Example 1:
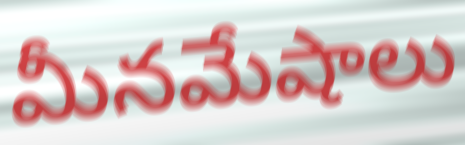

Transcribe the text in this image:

మీనమేషాలు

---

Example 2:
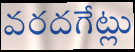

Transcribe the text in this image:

వరదగేట్లు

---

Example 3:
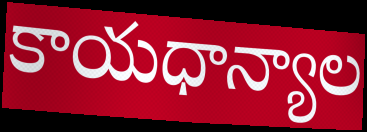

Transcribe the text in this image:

కాయధాన్యాల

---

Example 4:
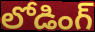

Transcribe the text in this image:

లోడింగ్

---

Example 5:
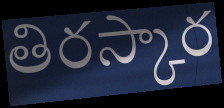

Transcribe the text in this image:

తిరస్కార